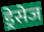
ड्रेसेज